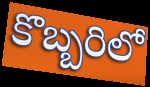
కొబ్బరిలో